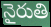
నైరుతి